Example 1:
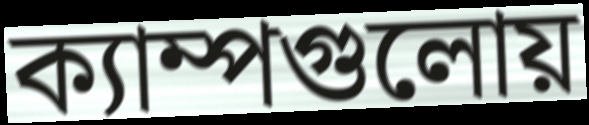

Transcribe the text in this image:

ক্যাম্পগুলোয়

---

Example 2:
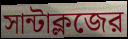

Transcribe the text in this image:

সান্টাক্লজের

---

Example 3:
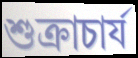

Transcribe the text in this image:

শুক্রাচার্য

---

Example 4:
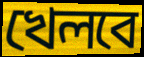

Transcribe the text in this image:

খেলবে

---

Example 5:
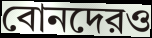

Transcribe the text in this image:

বোনদেরও